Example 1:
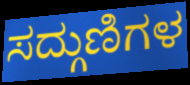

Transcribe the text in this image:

ಸದ್ಗುಣಿಗಳ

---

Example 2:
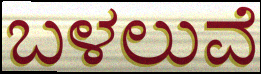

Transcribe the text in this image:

ಬಳಲುವೆ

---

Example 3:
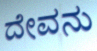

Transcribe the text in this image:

ದೇವನು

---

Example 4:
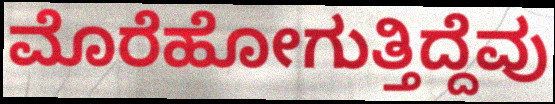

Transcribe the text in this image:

ಮೊರೆಹೋಗುತ್ತಿದ್ದೆವು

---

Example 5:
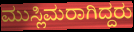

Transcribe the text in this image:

ಮುಸ್ಲಿಮರಾಗಿದ್ದರು